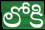
లోకి